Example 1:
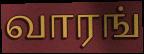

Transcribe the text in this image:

வாரங்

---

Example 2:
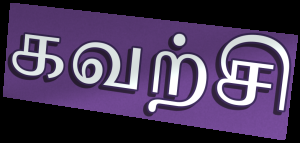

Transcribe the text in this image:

கவற்சி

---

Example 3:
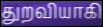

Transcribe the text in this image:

துறவியாகி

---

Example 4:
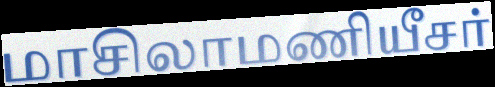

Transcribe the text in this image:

மாசிலாமணியீசர்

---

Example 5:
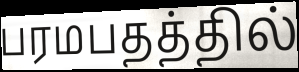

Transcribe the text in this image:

பரமபதத்தில்